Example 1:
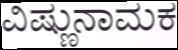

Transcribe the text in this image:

ವಿಷ್ಣುನಾಮಕ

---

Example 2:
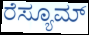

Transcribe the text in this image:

ರೆಸ್ಯೂಮ್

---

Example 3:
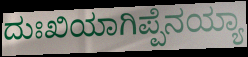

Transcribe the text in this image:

ದುಃಖಿಯಾಗಿಪ್ಪೆನಯ್ಯಾ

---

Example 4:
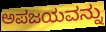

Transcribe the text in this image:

ಅಪಜಯವನ್ನು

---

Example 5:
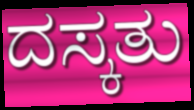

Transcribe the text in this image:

ದಸ್ಕತು